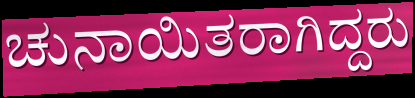
ಚುನಾಯಿತರಾಗಿದ್ದರು